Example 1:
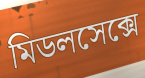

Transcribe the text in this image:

মিডলসেক্সে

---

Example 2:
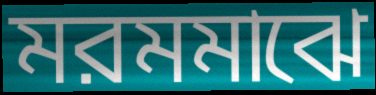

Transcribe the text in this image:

মরমমাঝে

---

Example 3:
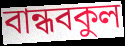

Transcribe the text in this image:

বান্ধবকুল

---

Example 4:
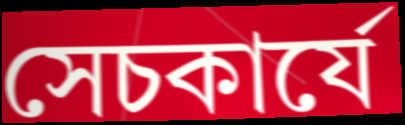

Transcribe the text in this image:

সেচকার্যে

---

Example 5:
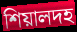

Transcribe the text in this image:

শিয়ালদহ